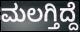
ಮಲಗ್ತಿದ್ದೆ